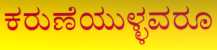
ಕರುಣೆಯುಳ್ಳವರೂ